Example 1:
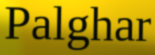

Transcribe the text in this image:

Palghar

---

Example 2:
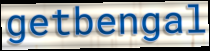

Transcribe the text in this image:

getbengal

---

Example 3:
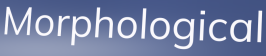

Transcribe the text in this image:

Morphological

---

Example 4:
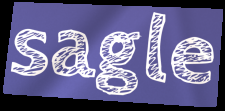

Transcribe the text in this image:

sagle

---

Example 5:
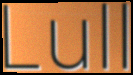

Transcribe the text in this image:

Lull